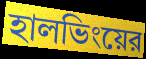
হালভিংয়ের